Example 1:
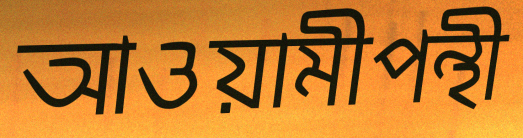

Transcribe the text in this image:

আওয়ামীপন্থী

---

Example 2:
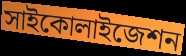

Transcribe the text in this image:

সাইকোলাইজেশন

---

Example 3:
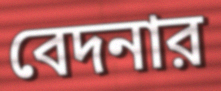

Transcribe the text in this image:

বেদনার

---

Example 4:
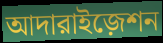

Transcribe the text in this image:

আদারাইজ়েশন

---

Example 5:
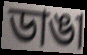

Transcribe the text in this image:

ডাঙা